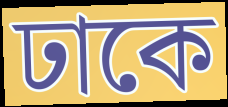
ঢাকে